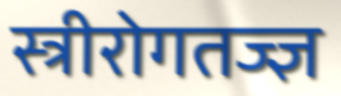
स्‍त्रीरोगतज्‍ज्ञ